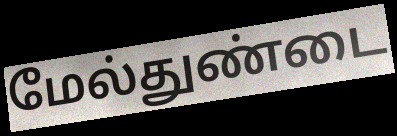
மேல்துண்டை